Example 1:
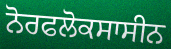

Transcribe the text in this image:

ਨੋਰਫਲੋਕਸਾਸੀਨ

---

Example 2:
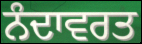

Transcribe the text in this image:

ਨੰਦਾਵਰਤ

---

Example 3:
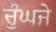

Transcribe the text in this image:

ਚੁੰਘਜੇ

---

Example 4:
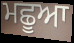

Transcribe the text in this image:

ਮਛੂਆ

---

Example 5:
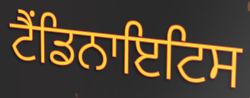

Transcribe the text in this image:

ਟੈਂਡਿਨਾਇਟਿਸ